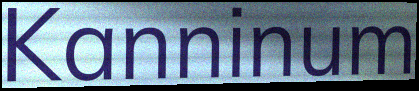
Kanninum